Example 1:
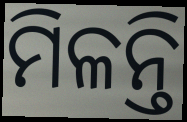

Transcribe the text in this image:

ମିଳନ୍ତି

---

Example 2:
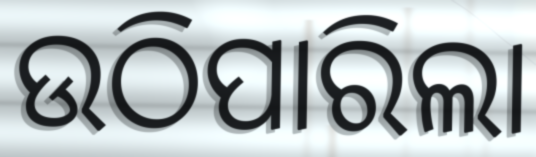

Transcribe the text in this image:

ଉଠିପାରିଲା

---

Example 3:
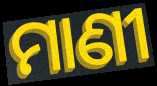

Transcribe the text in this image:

ମାଣୀ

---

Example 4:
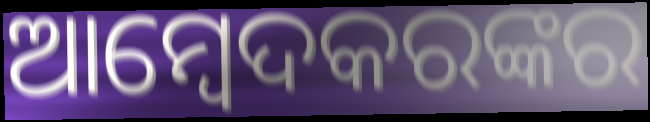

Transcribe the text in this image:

ଆମ୍ବେଦକରଙ୍କର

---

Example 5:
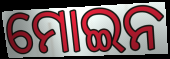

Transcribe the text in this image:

ମୋଇନ